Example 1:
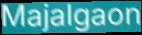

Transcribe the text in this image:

Majalgaon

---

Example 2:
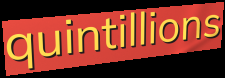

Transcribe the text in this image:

quintillions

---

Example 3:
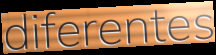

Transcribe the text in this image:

diferentes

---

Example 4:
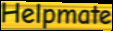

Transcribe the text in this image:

Helpmate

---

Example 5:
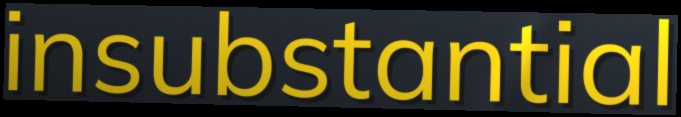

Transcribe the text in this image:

insubstantial